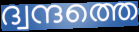
ദ്വന്ദത്തെ